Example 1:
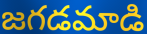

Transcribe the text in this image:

జగడమాడి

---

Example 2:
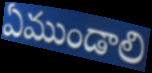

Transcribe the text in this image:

ఏముండాలి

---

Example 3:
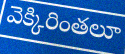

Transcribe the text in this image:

వెక్కిరింతలూ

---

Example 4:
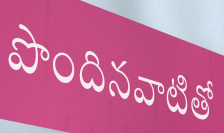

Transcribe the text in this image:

పొందినవాటితో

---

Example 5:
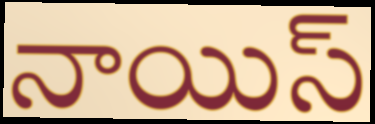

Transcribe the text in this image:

నాయిస్